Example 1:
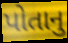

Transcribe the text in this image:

પોતાનુ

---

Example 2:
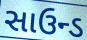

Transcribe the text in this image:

સાઉન્ડ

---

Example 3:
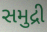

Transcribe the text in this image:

સમુદ્રી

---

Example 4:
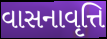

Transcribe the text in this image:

વાસનાવૃત્તિ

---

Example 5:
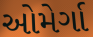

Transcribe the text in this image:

ઓમેર્ગા